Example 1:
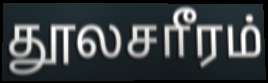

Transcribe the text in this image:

தூலசரீரம்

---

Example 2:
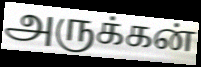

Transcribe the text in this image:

அருக்கன்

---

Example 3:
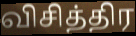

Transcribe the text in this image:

விசித்திர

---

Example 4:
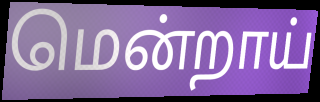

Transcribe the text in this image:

மென்றாய்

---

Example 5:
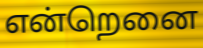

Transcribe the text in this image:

என்றெனை